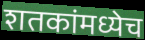
शतकांमध्येच